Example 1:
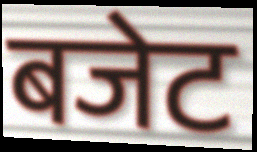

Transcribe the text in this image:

बजेट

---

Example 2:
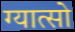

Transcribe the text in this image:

ग्यात्सो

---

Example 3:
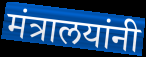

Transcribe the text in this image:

मंत्रालयांनी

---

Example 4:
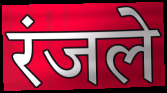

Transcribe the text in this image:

रंजले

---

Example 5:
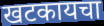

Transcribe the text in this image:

खटकायचा